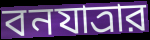
বনযাত্রার